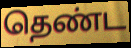
தெண்ட